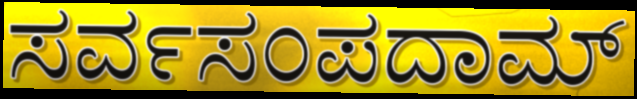
ಸರ್ವಸಂಪದಾಮ್